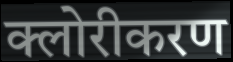
क्लोरीकरण